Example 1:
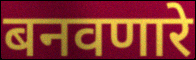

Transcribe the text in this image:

बनवणारे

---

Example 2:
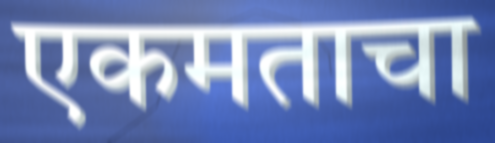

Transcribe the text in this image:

एकमताचा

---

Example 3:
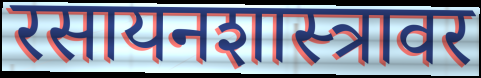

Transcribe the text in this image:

रसायनशास्त्रावर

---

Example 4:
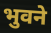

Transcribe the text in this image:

भुवने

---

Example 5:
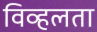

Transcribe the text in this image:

विव्हलता